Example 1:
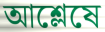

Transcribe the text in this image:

আশ্লেষে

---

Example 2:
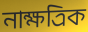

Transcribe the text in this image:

নাক্ষত্রিক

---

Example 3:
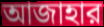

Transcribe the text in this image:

আজাহার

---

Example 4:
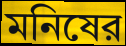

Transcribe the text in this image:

মনিষের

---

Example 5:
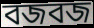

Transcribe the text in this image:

বজবজ